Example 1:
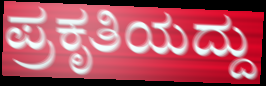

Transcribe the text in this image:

ಪ್ರಕೃತಿಯದ್ದು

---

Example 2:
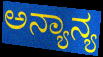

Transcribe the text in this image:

ಅನ್ಯಾನ್ಯ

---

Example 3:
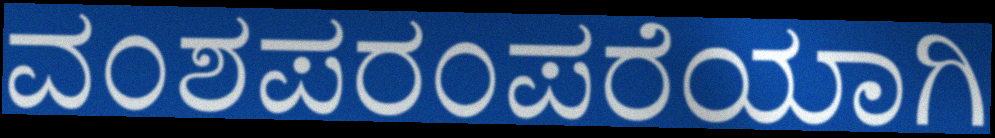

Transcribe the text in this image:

ವಂಶಪರಂಪರೆಯಾಗಿ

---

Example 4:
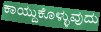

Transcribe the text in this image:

ಕಾಯ್ದುಕೊಳ್ಳುವುದು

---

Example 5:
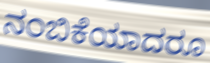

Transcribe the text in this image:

ನಂಬಿಕೆಯಾದರೂ